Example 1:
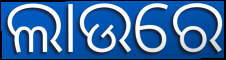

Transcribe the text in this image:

ଲାଉରେ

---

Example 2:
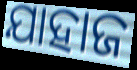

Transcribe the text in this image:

ଯାହାଜ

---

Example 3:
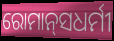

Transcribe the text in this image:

ରୋମାନ୍‍ସଧର୍ମୀ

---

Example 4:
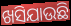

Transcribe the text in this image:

ଖସିଯାଉଛି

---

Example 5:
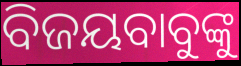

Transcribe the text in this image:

ବିଜୟବାବୁଙ୍କୁ